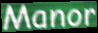
Manor